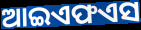
ଆଇଏଫଏସ